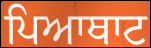
ਪਿਆਥਾਟ